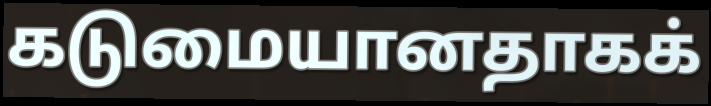
கடுமையானதாகக்